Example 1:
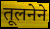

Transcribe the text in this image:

तूलनेने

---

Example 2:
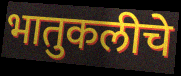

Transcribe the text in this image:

भातुकलीचे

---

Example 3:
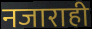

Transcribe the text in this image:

नजाराही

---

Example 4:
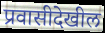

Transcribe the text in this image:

प्रवासीदेखील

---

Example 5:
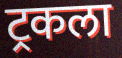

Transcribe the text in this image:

ट्रकला